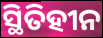
ସ୍ଥିତିହୀନ